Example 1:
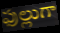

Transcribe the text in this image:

ఫుల్లుగా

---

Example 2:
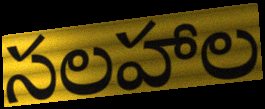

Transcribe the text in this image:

సలహాల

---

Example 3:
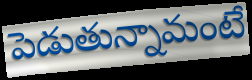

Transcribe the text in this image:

పెడుతున్నామంటే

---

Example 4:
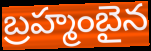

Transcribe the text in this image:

బ్రహ్మంబైన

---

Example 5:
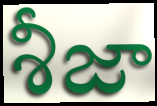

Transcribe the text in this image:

శీజా